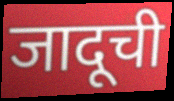
जादूची